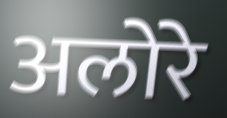
अलोरे